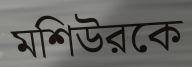
মশিউরকে